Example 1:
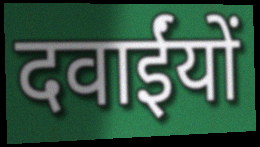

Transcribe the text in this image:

दवाईंयों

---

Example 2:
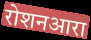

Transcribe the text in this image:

रोशनआरा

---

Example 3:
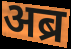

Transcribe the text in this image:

अब्र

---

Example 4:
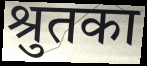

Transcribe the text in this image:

श्रुतका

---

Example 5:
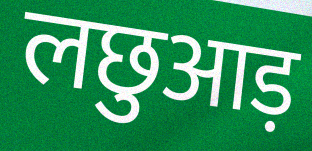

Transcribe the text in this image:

लछुआड़